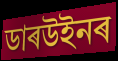
ডাৰউইনৰ